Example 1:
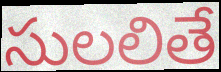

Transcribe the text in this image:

సులలితే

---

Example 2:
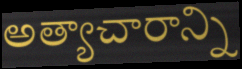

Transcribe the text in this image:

అత్యాచారాన్ని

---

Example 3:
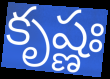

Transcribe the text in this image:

కృష్ణః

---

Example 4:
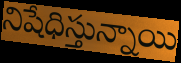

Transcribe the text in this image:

నిషేధిస్తున్నాయి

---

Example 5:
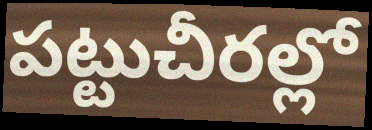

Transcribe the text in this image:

పట్టుచీరల్లో